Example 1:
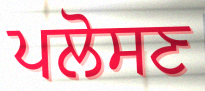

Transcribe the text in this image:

ਪਲੋਸਣ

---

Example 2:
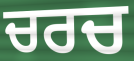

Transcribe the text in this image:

ਚਰਚ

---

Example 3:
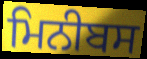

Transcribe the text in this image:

ਮਿਨੀਬਸ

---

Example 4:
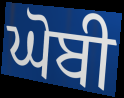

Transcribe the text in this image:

ਘੋਬੀ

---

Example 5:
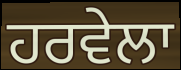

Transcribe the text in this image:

ਹਰਵੇਲਾ